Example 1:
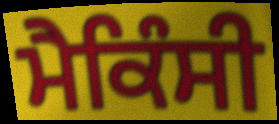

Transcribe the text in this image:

ਮੈਕਿੰਸੀ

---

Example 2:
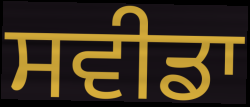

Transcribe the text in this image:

ਸਵੀਡਾ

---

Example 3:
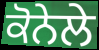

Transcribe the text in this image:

ਕੋਨੇਲੇ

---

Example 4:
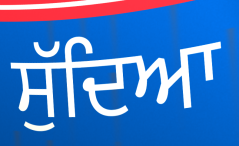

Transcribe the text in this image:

ਸੁੱਦਿਆ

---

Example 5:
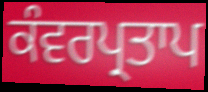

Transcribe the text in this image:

ਕੰਵਰਪ੍ਰਤਾਪ